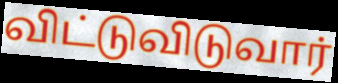
விட்டுவிடுவார்